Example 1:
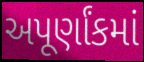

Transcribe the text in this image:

અપૂર્ણાંકમાં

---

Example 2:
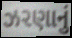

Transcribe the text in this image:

ઝરણાનું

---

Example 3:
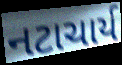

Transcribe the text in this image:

નટાચાર્ય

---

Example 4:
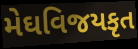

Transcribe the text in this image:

મેઘવિજયકૃત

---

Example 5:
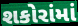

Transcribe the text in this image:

શકોરાંમાં